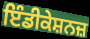
ਇੰਡੀਕੇਸ਼ਨਜ਼